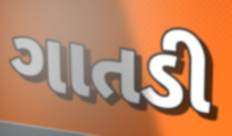
ગાતડી